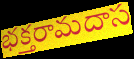
భక్తరామదాస